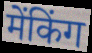
मेंकिंग